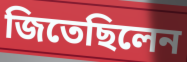
জিতেছিলেন